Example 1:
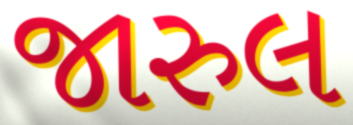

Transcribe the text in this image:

જારુલ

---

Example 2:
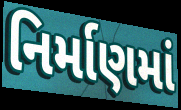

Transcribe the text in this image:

નિર્માણમાં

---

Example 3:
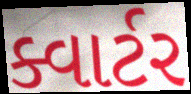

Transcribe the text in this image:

ક્વાર્ટર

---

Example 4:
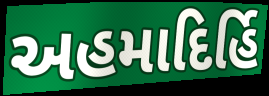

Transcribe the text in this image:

અહમાદિર્હિ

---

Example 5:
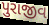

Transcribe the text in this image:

પુરાજીવ